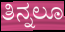
ತಿನ್ನಲೂ